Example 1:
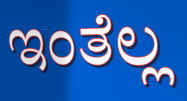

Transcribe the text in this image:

ಇಂತೆಲ್ಲ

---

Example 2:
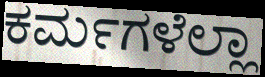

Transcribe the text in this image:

ಕರ್ಮಗಳೆಲ್ಲಾ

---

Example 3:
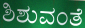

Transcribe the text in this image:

ಶಿಶುವಂತೆ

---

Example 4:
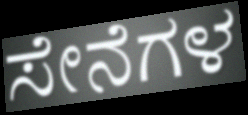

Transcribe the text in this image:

ಸೇನೆಗಳ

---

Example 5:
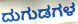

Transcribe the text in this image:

ದುಗುಡಗಳ